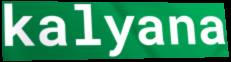
kalyana